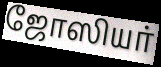
ஜோஸியர்